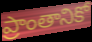
ప్రాంతానికో